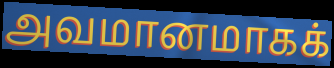
அவமானமாகக்